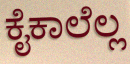
ಕೈಕಾಲೆಲ್ಲ